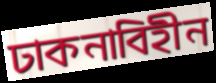
ঢাকনাবিহীন